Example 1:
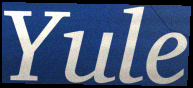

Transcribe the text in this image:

Yule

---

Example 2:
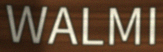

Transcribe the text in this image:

WALMI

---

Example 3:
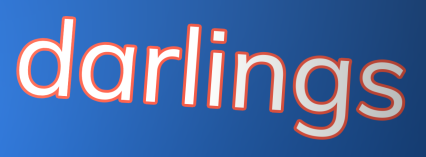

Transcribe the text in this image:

darlings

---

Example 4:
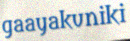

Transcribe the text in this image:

gaayakuniki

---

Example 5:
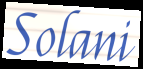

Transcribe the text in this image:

Solani